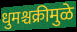
धुमश्चक्रीमुळे